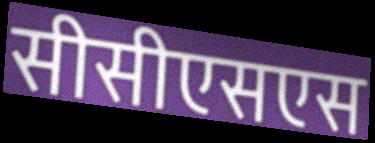
सीसीएसएस